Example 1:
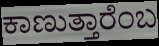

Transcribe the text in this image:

ಕಾಣುತ್ತಾರೆಂಬ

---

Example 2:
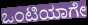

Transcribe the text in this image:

ಒಂಟಿಯಾಗೇ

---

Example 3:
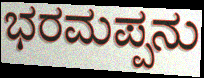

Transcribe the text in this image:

ಭರಮಪ್ಪನು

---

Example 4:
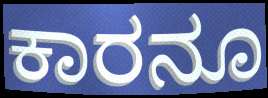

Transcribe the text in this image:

ಕಾರನೂ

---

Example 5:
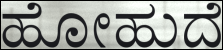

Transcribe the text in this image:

ಹೋಹುದೆ